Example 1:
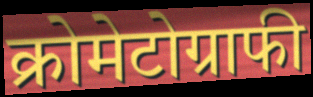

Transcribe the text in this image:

क्रोमेटोग्राफी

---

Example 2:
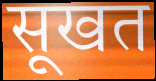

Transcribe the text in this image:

सूखत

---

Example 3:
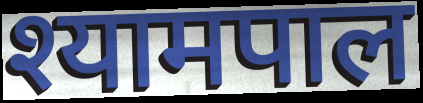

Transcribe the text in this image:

श्यामपाल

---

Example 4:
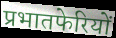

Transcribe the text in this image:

प्रभातफेरियों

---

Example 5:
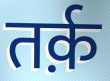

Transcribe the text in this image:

तर्क़